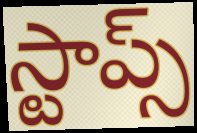
స్టాప్స్